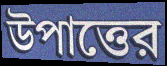
উপাত্তের